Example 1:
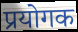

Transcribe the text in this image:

प्रयोगक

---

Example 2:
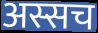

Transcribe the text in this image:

अस्सच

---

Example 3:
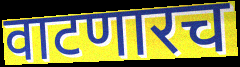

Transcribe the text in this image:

वाटणारच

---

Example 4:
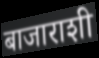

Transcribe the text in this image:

बाजाराशी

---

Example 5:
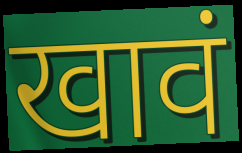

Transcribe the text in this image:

खावं